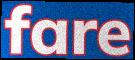
fare